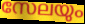
സേലയും